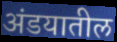
अंडयातील